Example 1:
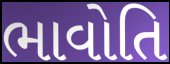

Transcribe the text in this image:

ભાવોતિ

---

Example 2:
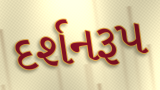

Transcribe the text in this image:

દર્શનરૂપ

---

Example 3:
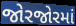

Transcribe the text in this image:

જોરજોરમાં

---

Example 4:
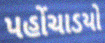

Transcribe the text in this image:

પહોંચાડયો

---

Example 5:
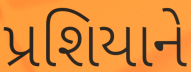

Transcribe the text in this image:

પ્રશિયાને